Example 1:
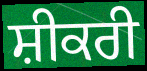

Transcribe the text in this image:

ਸ਼ੀਕਰੀ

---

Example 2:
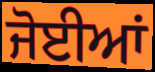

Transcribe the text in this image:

ਜੋਈਆਂ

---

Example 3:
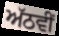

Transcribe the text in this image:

ਅੱਠਵੀਂ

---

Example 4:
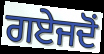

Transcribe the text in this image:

ਗਏਜਦੋਂ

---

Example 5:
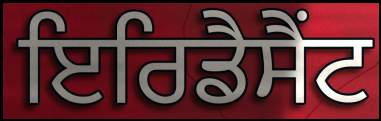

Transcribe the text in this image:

ਇਰਿਡੈਸੈਂਟ